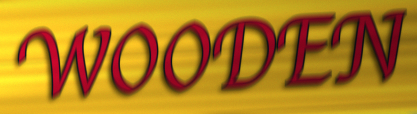
WOODEN